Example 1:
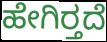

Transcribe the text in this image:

ಹೇಗಿರ್‍ತದೆ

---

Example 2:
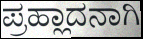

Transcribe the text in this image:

ಪ್ರಹ್ಲಾದನಾಗಿ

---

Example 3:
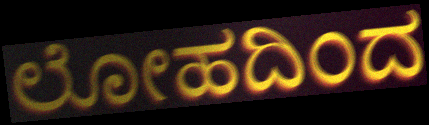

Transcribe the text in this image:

ಲೋಹದಿಂದ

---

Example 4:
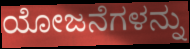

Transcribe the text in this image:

ಯೋಜನೆಗಳನ್ನು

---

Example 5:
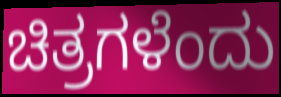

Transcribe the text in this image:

ಚಿತ್ರಗಳೆಂದು